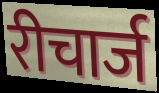
रीचार्ज